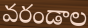
వరండాల